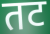
तट